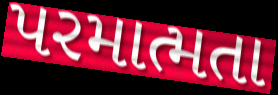
પરમાત્મતા